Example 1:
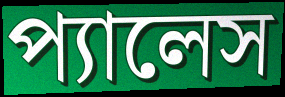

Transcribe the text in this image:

প্যালেস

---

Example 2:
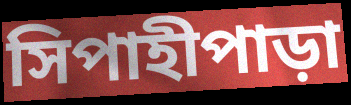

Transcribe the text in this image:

সিপাহীপাড়া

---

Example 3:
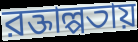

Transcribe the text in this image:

রক্তাল্পতায়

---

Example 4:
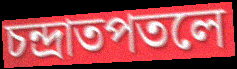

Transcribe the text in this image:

চন্দ্রাতপতলে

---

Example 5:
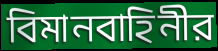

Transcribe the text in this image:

বিমানবাহিনীর